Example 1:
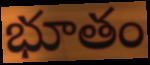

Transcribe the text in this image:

భూతం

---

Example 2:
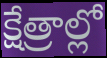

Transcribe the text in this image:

క్షేత్రాల్లో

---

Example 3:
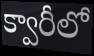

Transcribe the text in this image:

క్వారీలో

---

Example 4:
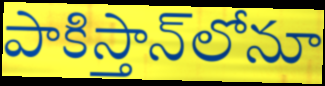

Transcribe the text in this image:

పాకిస్తాన్‌లోనూ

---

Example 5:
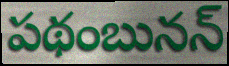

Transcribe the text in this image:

పథంబునన్